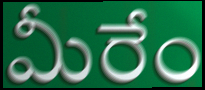
మీరేం